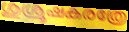
ശുശ്രൂഷകരത്രേ